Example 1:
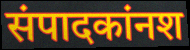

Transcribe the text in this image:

संपादकांनश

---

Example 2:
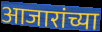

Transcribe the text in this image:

आजारांच्या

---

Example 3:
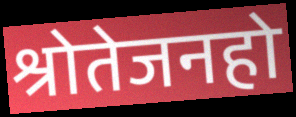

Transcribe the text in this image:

श्रोतेजनहो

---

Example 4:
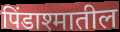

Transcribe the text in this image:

पिंडाश्मातील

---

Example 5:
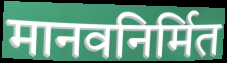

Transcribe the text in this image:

मानवनिर्मित